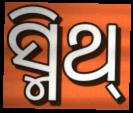
ସ୍ମିଥ୍